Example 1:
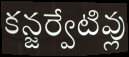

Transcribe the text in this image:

కన్జర్వేటివ్లు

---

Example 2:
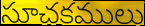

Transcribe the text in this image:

సూచకములు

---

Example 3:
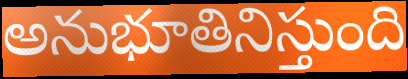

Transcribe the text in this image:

అనుభూతినిస్తుంది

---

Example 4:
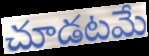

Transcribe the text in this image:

చూడటమే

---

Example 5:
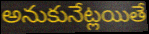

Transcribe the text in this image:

అనుకునేట్లయితే